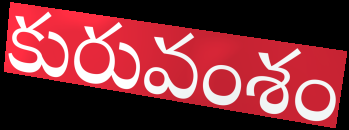
కురువంశం